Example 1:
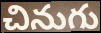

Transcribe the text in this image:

చినుగు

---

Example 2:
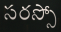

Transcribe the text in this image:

సరస్సో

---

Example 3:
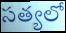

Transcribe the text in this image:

సత్యలో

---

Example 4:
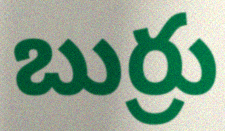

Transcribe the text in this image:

బుర్రు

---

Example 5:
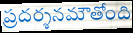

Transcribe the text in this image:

ప్రదర్శనమౌతోంది